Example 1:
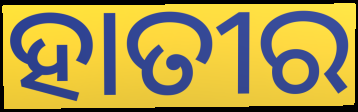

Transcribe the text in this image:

ହାତୀର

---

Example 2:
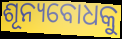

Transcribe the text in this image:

ଶୂନ୍ୟବୋଧକୁ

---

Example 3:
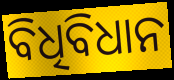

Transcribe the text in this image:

ବିଧିବିଧାନ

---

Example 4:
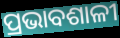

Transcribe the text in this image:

ପ୍ରଭାବଶାଳୀ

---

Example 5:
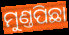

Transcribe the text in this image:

ମୁଣ୍ତପିଛା